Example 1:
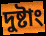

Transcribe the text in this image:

দুষ্টাং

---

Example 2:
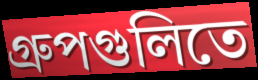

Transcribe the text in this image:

গ্রুপগুলিতে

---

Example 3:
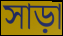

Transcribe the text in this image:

সাড়া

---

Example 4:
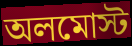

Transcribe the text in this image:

অলমোস্ট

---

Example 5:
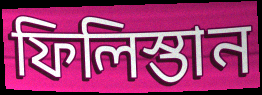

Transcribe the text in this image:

ফিলিস্তান